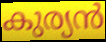
കുര്യൻ